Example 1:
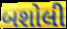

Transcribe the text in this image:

બશોલી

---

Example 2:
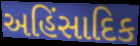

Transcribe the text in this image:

અહિંસાદિક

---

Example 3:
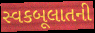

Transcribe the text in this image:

સ્વકબૂલાતની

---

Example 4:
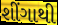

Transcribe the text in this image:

શીંગાથી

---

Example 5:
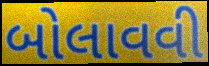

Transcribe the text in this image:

બોલાવવી